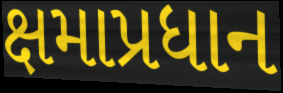
ક્ષમાપ્રધાન